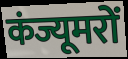
कंज्यूमरों